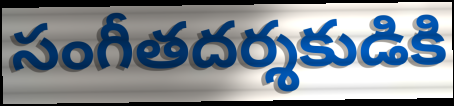
సంగీతదర్శకుడికి